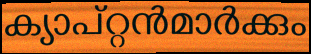
ക്യാപ്റ്റൻമാർക്കും